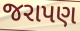
જરાપણ